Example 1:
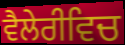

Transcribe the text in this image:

ਵੈਲੇਰੀਵਿਚ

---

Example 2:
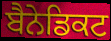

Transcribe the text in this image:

ਬੈਨੇਡਿਕਟ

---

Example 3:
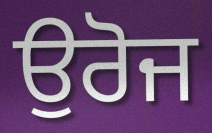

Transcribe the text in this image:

ਉਰੋਜ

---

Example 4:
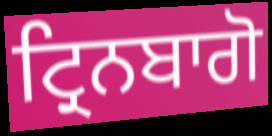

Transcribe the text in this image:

ਟ੍ਰਿਨਬਾਗੋ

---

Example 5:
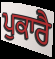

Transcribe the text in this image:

ਪੁਕਾਰੈ